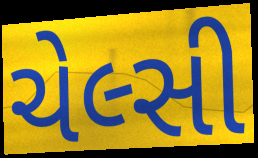
ચેલ્સી